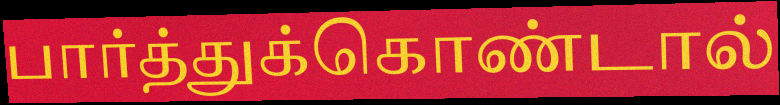
பார்த்துக்கொண்டால்